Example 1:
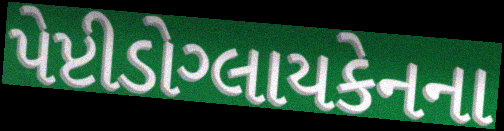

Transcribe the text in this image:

પેપ્ટીડોગ્લાયકેનના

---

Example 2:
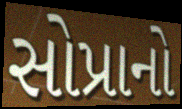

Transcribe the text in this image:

સોપ્રાનો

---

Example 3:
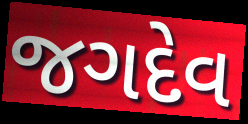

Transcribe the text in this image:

જગદેવ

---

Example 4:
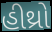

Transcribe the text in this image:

હીથ્રો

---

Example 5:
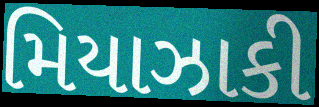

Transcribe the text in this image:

મિયાઝાકી